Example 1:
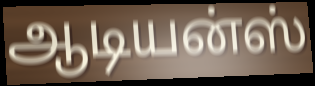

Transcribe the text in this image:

ஆடியன்ஸ்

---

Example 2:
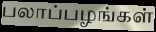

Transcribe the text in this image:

பலாப்பழங்கள்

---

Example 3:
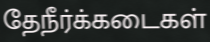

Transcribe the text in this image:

தேநீர்க்கடைகள்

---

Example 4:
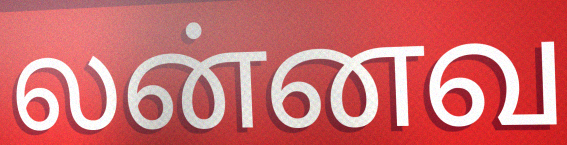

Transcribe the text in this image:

லன்னவ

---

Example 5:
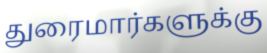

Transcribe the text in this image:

துரைமார்களுக்கு